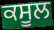
ਕਸੂਲ